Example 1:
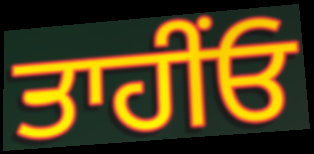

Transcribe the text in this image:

ਤਾਹੀਂਓ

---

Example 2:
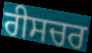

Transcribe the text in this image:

ਰੀਸਚਰ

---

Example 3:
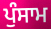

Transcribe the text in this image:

ਪੁੰਸਾਮ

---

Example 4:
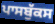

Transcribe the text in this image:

ਪਾਸਬੁੱਕਸ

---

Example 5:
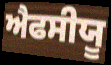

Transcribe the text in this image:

ਐਫਸੀਯੂ